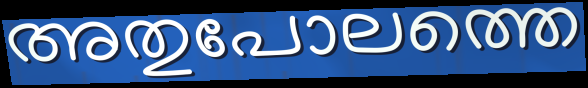
അതുപോലത്തെ